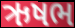
ઋષભ